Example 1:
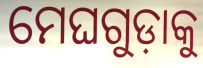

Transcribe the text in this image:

ମେଘଗୁଡ଼ାକୁ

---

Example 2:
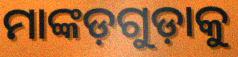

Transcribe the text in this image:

ମାଙ୍କଡ଼ଗୁଡ଼ାକୁ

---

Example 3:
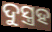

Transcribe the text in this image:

ଦୁସ୍ତ୍ରହ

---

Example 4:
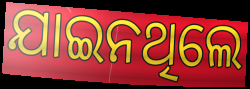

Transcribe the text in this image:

ଯାଇନଥିଲେ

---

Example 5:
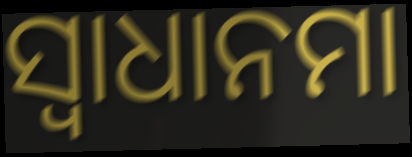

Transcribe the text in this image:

ସ୍ଵାଧାନମା